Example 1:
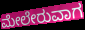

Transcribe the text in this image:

ಮೇಲೇರುವಾಗ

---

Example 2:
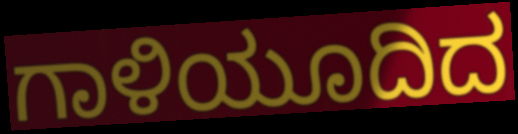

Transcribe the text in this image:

ಗಾಳಿಯೂದಿದ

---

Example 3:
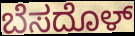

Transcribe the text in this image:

ಬೆಸದೊಳ್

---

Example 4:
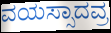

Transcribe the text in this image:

ವಯಸ್ಸಾದವ್ರ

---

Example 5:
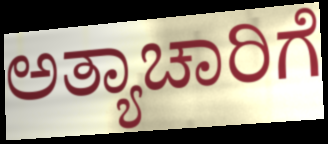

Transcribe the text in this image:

ಅತ್ಯಾಚಾರಿಗೆ